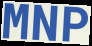
MNP